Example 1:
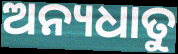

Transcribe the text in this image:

ଅନ୍ୟଧାତୁ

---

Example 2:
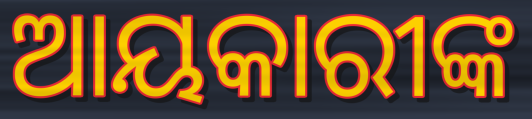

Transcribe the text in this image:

ଆୟକାରୀଙ୍କ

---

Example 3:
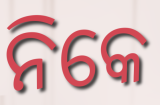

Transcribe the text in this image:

ନିକେ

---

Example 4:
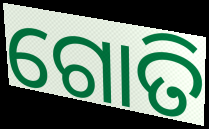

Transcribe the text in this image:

ଗୋତି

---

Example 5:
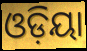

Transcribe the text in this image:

ଓଡ଼ିୟା